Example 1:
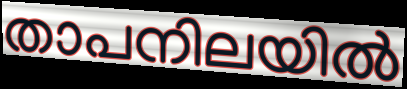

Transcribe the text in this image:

താപനിലയിൽ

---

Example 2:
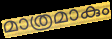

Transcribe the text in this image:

മാത്രമാകും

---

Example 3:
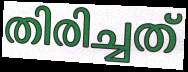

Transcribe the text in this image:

തിരിച്ചത്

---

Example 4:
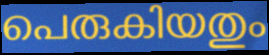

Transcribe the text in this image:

പെരുകിയതും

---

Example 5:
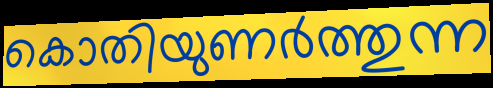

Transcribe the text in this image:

കൊതിയുണർത്തുന്ന